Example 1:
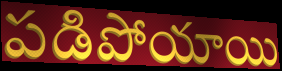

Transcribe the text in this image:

పడిపోయాయి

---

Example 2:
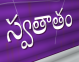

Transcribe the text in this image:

స్వతాతం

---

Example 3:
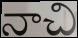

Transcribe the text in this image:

నాచి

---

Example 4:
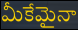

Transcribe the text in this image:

మీకేమైనా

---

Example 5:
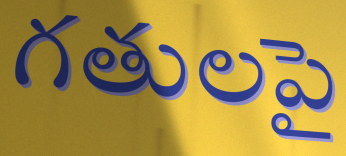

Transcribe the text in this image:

గతులపై